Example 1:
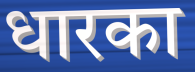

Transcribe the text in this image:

धारका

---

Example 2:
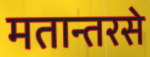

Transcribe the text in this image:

मतान्तरसे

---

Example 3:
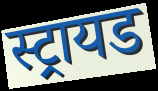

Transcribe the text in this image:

स्ट्रायड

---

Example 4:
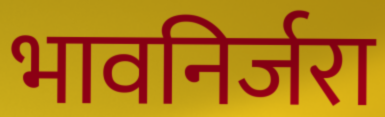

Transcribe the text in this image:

भावनिर्जरा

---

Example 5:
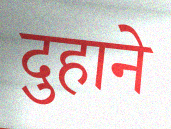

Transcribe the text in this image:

दुहाने